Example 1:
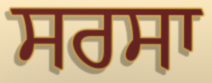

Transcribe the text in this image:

ਸਰਸਾ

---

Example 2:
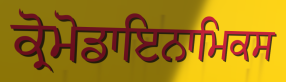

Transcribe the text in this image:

ਕ੍ਰੋਮੋਡਾਇਨਾਮਿਕਸ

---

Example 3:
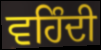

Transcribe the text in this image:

ਵਹਿੰਦੀ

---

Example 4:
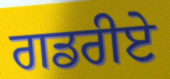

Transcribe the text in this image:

ਗਡਰੀਏ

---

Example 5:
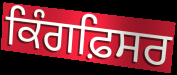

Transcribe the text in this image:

ਕਿੰਗਫ਼ਿਸਰ